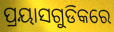
ପ୍ରୟାସଗୁଡିକରେ